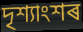
দৃশ্যাংশৰ